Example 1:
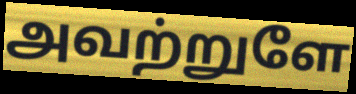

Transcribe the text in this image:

அவற்றுளே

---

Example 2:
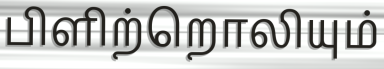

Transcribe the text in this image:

பிளிற்றொலியும்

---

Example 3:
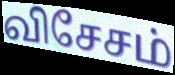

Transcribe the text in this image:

விசேசம்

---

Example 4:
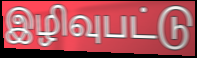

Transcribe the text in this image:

இழிவுபட்டு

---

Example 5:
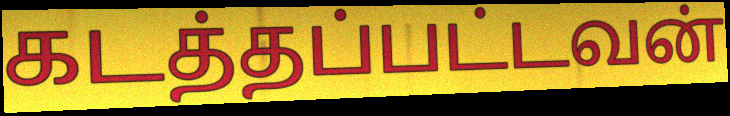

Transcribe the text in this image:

கடத்தப்பட்டவன்